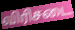
விரிசடை